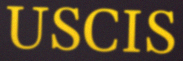
USCIS